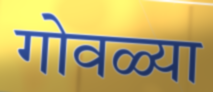
गोवळ्या